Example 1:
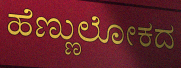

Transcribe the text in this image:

ಹೆಣ್ಣುಲೋಕದ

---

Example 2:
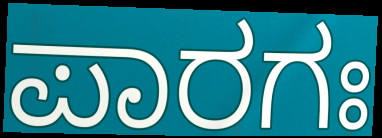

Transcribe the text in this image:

ಪಾರಗಃ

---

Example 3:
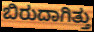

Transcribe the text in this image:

ಬಿರುದಾಗಿತ್ತು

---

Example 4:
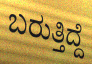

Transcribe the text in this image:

ಬರುತ್ತಿದ್ದೆ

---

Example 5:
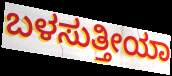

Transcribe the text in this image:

ಬಳಸುತ್ತೀಯಾ